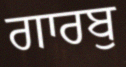
ਗਾਰਬੁ